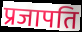
प्रजापति